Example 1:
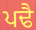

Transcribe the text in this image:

ਪਢੈ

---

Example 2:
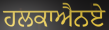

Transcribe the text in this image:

ਹਲਕਾਐਨਏ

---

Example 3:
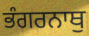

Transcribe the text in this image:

ਭੰਗਰਨਾਥੁ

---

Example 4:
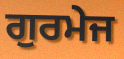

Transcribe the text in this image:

ਗੁਰਮੇਜ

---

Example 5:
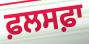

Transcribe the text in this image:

ਫ਼ਲਸਫ਼ਾ